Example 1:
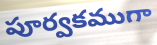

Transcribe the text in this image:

పూర్వకముగా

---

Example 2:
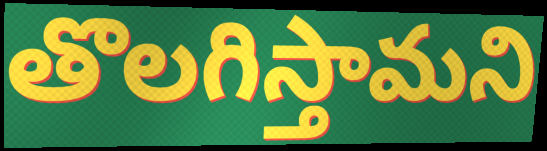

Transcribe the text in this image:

తొలగిస్తామని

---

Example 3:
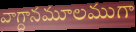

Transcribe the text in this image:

వాగ్దానమూలముగా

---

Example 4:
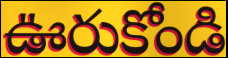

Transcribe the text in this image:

ఊరుకోండి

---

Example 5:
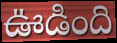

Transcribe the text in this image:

ఊడింది